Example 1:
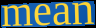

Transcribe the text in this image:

mean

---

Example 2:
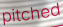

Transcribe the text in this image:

pitched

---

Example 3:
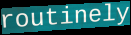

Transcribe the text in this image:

routinely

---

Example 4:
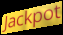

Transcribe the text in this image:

Jackpot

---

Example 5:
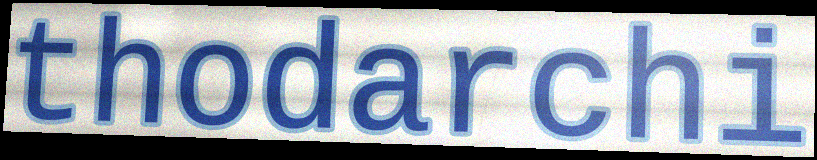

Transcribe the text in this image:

thodarchi